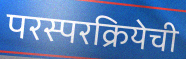
परस्परक्रियेची